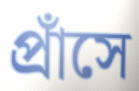
প্রাঁসে